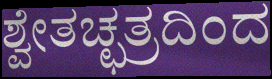
ಶ್ವೇತಚ್ಛತ್ರದಿಂದ